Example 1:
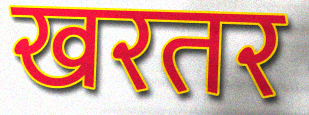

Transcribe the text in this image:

खरतर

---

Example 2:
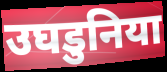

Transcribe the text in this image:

उघडुनिया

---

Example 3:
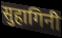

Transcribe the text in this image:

सुहागिनी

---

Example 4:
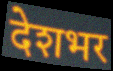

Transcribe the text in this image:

देशभर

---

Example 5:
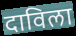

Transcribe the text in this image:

दाविला